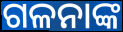
ଗଳନାଙ୍କ